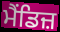
ਮੈਂਡਿਜ਼